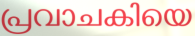
പ്രവാചകിയെ